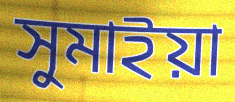
সুমাইয়া